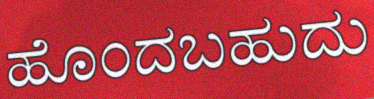
ಹೊಂದಬಹುದು